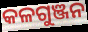
କଳଗୁଞ୍ଜନ